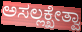
ಅಸಲ್ಲಕ್ಖೇತ್ವಾ